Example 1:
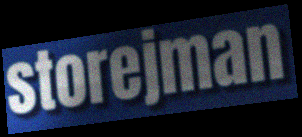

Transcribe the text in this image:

storejman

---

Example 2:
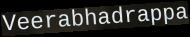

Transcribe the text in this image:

Veerabhadrappa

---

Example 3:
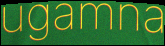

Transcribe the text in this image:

ugamna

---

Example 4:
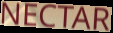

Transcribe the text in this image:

NECTAR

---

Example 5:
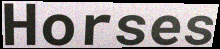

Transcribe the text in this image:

Horses